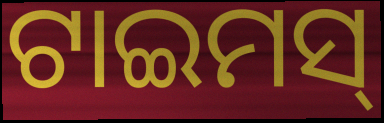
ଟାଇମସ୍